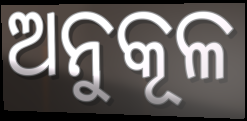
ଅନୁକୂଳ